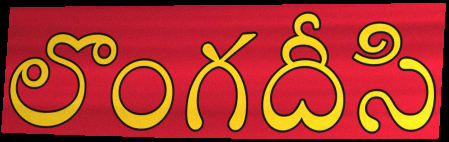
లొంగదీసి